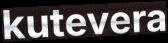
kutevera